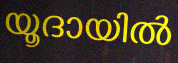
യൂദായിൽ